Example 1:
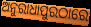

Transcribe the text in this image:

ଅନୁରାଧାପୁରଠାରେ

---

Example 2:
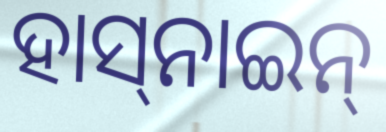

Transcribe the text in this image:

ହାସ୍‌ନାଇନ୍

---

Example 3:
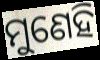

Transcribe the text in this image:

ମୁଣେହି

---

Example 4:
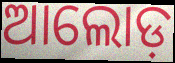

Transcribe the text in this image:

ଆଲୋଡ଼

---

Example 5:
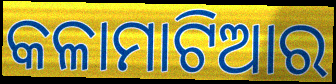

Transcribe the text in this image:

କଳାମାଟିଆର